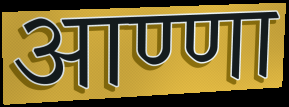
आण्णा